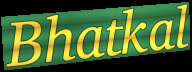
Bhatkal